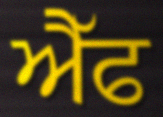
ਐੈੱਫ